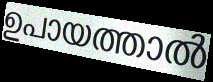
ഉപായത്താൽ